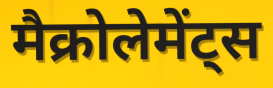
मैक्रोलेमेंट्स